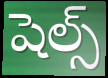
షెల్స్